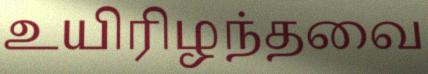
உயிரிழந்தவை